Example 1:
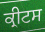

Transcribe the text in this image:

ਕ੍ਰੀਟਸ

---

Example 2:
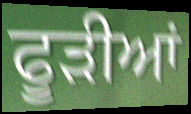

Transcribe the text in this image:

ਫੂੜੀਆਂ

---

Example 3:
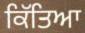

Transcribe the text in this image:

ਕਿੱਤਿਆ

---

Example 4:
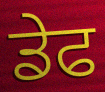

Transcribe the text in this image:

ਡੇਫ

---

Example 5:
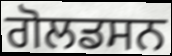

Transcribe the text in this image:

ਗੋਲਡਸਨ